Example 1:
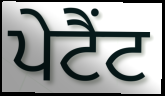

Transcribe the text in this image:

ਪੇਟੈਂਟ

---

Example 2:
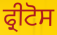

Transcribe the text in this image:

ਫ੍ਰੀਟੋਸ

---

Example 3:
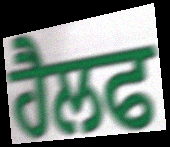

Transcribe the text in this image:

ਹੈਲਫ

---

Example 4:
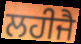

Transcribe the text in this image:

ਲਹੀਜੈ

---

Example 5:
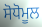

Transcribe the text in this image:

ਸੋਧੋਮੂਲ